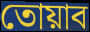
তোয়াব